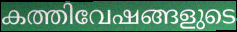
കത്തിവേഷങ്ങളുടെ